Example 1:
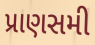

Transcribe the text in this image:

પ્રાણસમી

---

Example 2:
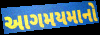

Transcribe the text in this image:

આગમયમાનો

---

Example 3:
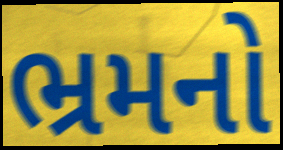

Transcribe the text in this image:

ભ્રમનો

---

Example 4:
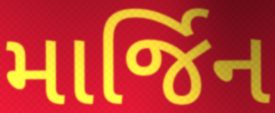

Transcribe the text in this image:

માર્જિન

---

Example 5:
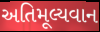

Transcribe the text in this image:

અતિમૂલ્યવાન